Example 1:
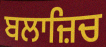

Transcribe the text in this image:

ਬਲਾਜ਼ਿਚ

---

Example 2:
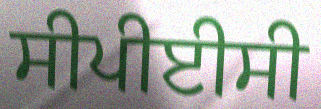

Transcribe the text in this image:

ਸੀਪੀਈਸੀ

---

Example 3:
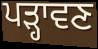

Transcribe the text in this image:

ਪੜ੍ਹਾਵਣ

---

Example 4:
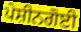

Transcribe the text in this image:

ਪੇਸ਼ੀਨਗੋਈ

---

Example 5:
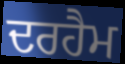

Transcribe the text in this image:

ਦਰਹੈਮ